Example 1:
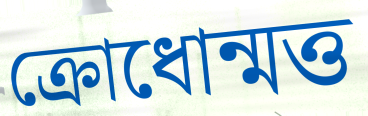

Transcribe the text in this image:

ক্রোধোন্মত্ত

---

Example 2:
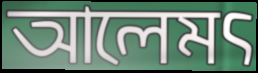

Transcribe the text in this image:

আলেমৎ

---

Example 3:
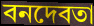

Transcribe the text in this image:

বনদেবতা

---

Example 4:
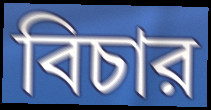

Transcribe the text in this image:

বিচার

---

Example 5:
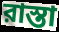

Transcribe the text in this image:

রাস্তা